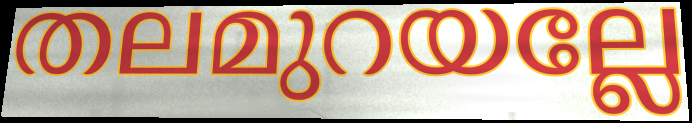
തലമുറയല്ലേ